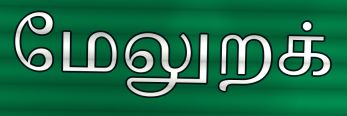
மேலுறக்